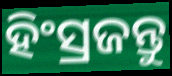
ହିଂସ୍ରଜନ୍ତୁ